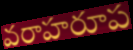
వరాహరూప